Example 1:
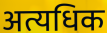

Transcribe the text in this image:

अत्यधिक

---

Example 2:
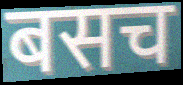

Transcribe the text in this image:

बसच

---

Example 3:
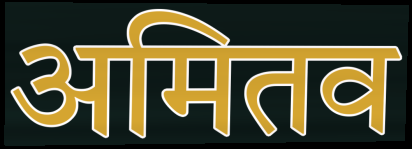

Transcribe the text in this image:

अमितव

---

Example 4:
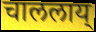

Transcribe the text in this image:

चाललाय्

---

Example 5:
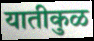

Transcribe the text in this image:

यातीकुळ